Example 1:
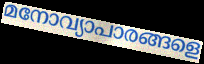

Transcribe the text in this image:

മനോവ്യാപാരങ്ങളെ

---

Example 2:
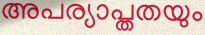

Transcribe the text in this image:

അപര്യാപ്തതയും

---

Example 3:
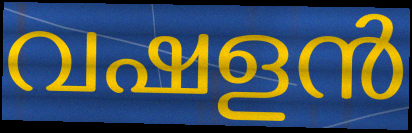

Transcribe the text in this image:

വഷളൻ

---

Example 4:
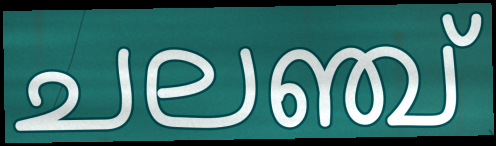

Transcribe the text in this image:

ചലഞ്ച്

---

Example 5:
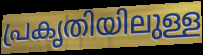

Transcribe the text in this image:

പ്രകൃതിയിലുള്ള